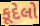
કૂદેલો